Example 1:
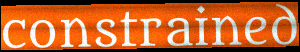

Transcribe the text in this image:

constrained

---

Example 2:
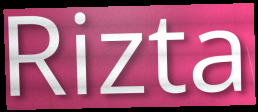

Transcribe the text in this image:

Rizta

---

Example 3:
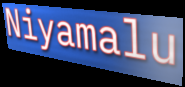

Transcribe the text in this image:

Niyamalu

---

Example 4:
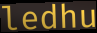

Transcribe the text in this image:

ledhu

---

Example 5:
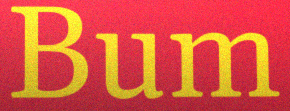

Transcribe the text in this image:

Bum